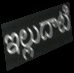
ఇల్లుదాటి